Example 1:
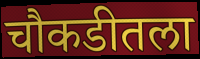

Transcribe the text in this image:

चौकडीतला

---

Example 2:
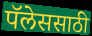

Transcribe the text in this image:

पॅलेससाठी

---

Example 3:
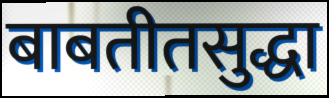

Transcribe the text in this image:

बाबतीतसुद्धा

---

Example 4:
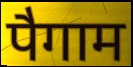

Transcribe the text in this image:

पैगाम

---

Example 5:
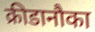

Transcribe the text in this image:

क्रीडानौका